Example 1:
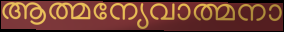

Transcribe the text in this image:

ആത്മന്യേവാത്മനാ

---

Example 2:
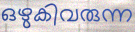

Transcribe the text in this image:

ഒഴുകിവരുന്ന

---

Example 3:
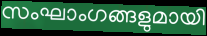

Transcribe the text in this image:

സംഘാംഗങ്ങളുമായി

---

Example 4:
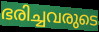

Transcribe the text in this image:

ഭരിച്ചവരുടെ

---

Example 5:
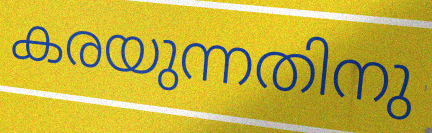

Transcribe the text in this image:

കരയുന്നതിനു